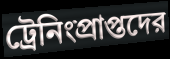
ট্রেনিংপ্রাপ্তদের